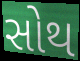
સોથ